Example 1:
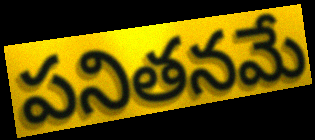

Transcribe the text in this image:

పనితనమే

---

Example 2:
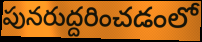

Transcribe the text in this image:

పునరుద్దరించడంలో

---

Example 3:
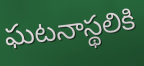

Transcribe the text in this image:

ఘటనాస్థలికి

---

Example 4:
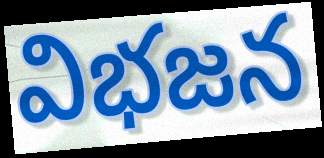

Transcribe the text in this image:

విభజన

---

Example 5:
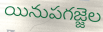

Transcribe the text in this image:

యినుపగజ్జెల